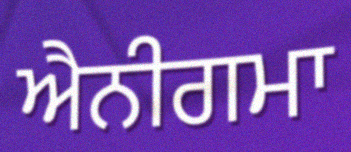
ਐਨੀਗਮਾ